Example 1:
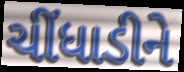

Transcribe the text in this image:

ચીંધાડીને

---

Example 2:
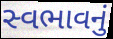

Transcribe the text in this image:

સ્વભાવનું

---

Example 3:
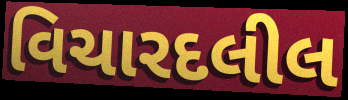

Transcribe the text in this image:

વિચારદલીલ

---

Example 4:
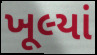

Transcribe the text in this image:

ખૂલ્યાં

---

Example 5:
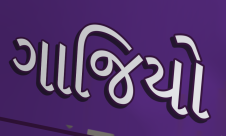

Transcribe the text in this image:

ગાજિયો